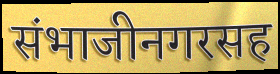
संभाजीनगरसह